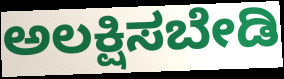
ಅಲಕ್ಷಿಸಬೇಡಿ